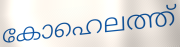
കോഹെലത്ത്